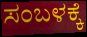
ಸಂಬಳಕ್ಕೆ